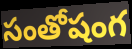
సంతోషంగ